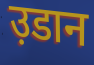
उ़डान